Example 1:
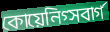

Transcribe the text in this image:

কোয়েনিগ্সবার্গ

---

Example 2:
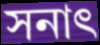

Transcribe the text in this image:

সনাৎ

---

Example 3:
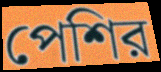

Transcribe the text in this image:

পেশির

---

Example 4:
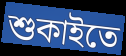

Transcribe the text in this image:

শুকাইতে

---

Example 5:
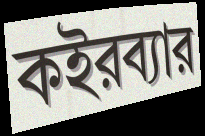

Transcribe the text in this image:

কইরব্যার